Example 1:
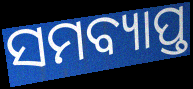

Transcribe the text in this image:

ସମବ୍ୟାପ୍ତ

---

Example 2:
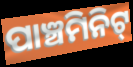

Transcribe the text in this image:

ପାଞ୍ଚମିନିଟ୍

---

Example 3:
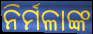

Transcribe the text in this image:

ନିର୍ମଳାଙ୍କ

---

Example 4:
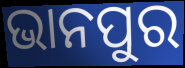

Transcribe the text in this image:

ଭାନପୁର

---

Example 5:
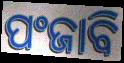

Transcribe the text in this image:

ପଂଜାବି